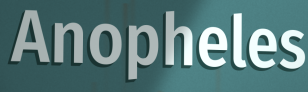
Anopheles